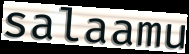
salaamu